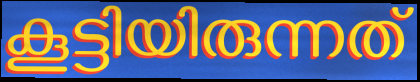
കൂട്ടിയിരുന്നത്